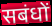
सबंधों